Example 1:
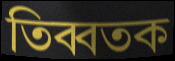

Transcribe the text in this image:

তিব্বতক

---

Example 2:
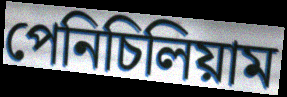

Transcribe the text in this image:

পেনিচিলিয়াম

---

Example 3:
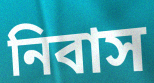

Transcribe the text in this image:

নিবাস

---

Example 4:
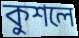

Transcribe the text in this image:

কুশলে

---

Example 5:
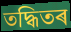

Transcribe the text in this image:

তদ্ধিতৰ